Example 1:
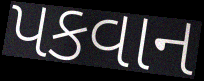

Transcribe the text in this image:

પકવાન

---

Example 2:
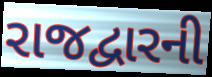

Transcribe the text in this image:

રાજદ્વારની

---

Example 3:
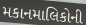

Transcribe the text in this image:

મકાનમાલિકોની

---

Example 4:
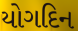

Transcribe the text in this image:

યોગદિન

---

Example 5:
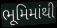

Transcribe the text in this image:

ભૂમિમાંથી